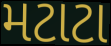
મટાટા